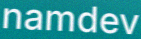
namdev